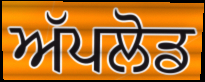
ਅੱਪਲੋਡ